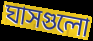
ঘাসগুলো